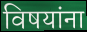
विषयांना